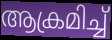
ആക്രമിച്ച്